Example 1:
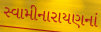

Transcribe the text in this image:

સ્વામીનારાયણનાં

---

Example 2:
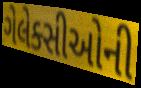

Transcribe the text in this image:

ગેલેક્સીઓની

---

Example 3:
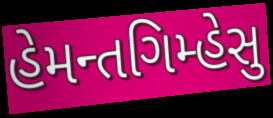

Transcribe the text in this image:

હેમન્તગિમ્હેસુ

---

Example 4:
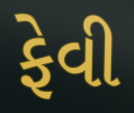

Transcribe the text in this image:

ફેવી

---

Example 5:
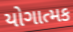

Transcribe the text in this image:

યોગાત્મક